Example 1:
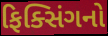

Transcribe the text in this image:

ફિક્સિંગનો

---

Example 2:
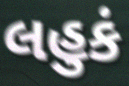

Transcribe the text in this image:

લહુકં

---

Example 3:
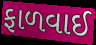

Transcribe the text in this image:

ફાળવાઈ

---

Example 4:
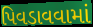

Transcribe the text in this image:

પિવડાવવામાં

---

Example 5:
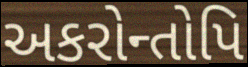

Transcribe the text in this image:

અકરોન્તોપિ